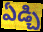
ఏడ్చి